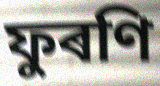
ফুৰণি